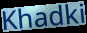
Khadki